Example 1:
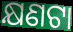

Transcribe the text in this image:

କ୍ଷଣଟା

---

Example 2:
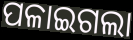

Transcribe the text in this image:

ପଳାଇଗଲା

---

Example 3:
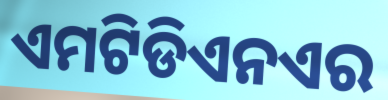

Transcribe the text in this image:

ଏମଟିଡିଏନଏର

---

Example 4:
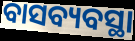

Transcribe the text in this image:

ବାସବ୍ୟବସ୍ଥା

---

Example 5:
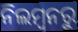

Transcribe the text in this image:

ନିଲମ୍ବନରୁ